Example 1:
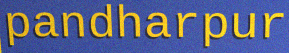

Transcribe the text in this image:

pandharpur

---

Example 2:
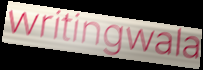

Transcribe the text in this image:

writingwala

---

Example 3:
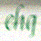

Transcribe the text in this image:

ehq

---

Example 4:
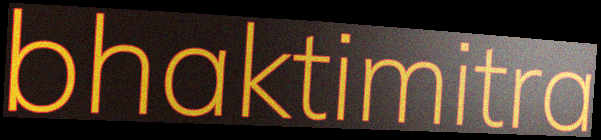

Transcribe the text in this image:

bhaktimitra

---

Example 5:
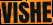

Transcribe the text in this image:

VISHE